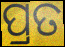
ପ୍ରତ